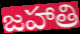
జహాతి